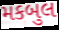
મકબુલ